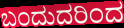
ಬಂದುದರಿಂದ